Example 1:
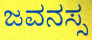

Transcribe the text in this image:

ಜವನಸ್ಸ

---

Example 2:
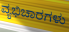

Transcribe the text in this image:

ವ್ಯಭಿಚಾರಗಳು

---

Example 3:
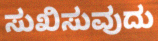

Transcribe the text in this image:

ಸುಖಿಸುವುದು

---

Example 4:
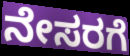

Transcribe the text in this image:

ನೇಸರಗೆ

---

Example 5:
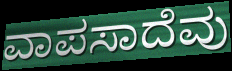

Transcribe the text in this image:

ವಾಪಸಾದೆವು